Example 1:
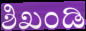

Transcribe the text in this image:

ಶಿಖಂಡಿ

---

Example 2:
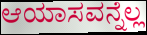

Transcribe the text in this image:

ಆಯಾಸವನ್ನೆಲ್ಲ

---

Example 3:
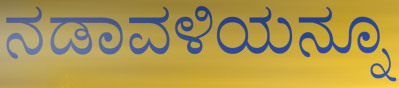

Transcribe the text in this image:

ನಡಾವಳಿಯನ್ನೂ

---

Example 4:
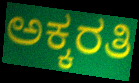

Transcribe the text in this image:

ಅಕ್ಕರತಿ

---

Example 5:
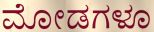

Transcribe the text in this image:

ಮೋಡಗಳೂ